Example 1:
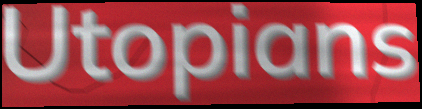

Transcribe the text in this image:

Utopians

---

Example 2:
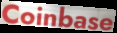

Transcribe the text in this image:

Coinbase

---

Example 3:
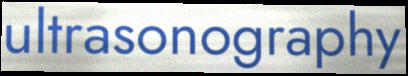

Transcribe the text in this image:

ultrasonography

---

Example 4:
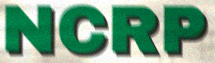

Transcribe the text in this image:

NCRP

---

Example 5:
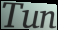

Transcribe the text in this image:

Tun